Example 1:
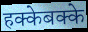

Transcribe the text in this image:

हक्केबक्के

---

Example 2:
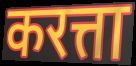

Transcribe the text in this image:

करत्ता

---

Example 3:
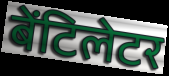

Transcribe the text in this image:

बेंटिलेटर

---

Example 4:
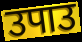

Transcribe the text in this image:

उपाउ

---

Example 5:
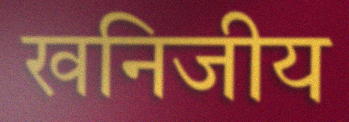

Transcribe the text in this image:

खनिजीय